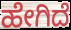
ಹೇಗಿದೆ